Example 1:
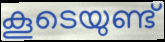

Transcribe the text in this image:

കൂടെയുണ്ട്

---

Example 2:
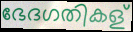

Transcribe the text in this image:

ഭേദഗതികള്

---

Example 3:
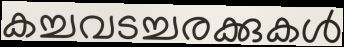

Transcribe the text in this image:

കച്ചവടച്ചരക്കുകൾ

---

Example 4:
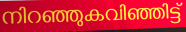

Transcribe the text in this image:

നിറഞ്ഞുകവിഞ്ഞിട്ട്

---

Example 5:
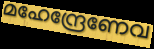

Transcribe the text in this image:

മഹേന്ദ്രേണേവ